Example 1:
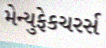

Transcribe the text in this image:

મેન્યુફેકચરર્સ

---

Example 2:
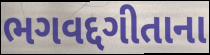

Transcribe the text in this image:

ભગવદ્દગીતાના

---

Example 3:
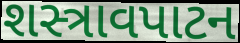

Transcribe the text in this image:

શસ્ત્રાવપાટન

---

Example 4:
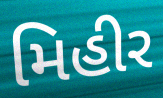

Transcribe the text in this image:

મિહીર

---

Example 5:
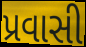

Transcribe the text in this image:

પ્રવાસી